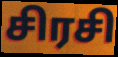
சிரசி